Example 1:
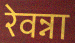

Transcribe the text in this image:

रेवन्ना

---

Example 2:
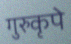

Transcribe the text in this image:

गुरुकृपे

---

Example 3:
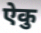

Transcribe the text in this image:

ऐकु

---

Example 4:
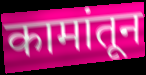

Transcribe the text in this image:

कामांतून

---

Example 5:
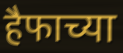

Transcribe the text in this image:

हैफाच्या